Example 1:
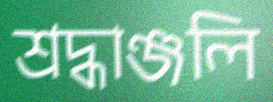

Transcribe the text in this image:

শ্রদ্ধাঞ্জলি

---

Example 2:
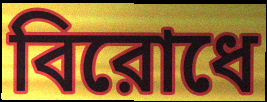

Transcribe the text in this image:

বিরোধে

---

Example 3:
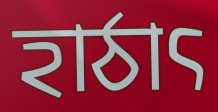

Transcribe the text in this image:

হাঠাৎ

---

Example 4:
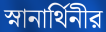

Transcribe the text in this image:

স্নানার্থিনীর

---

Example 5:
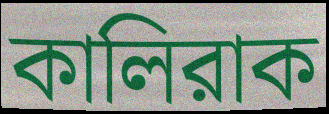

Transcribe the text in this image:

কালিরাক